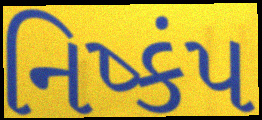
નિષ્કંપ